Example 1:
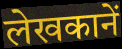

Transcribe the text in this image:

लेखकानें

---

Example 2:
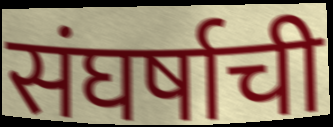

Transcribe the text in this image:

संघर्षाची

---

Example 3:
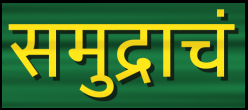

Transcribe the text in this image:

समुद्राचं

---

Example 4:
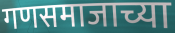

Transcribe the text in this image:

गणसमाजाच्या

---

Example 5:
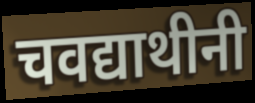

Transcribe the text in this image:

चवद्याथीनी